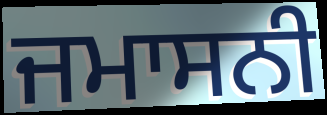
ਜਮਾਸਨੀ